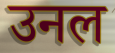
उनल